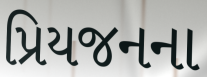
પ્રિયજનના